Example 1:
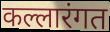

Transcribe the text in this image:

कल्लारंगत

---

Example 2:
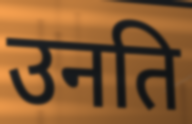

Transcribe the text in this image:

उनति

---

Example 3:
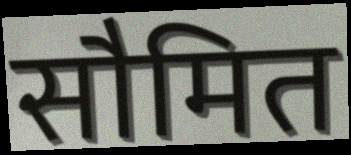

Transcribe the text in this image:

सौमित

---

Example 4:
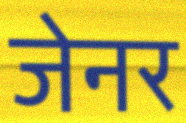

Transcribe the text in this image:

जेनर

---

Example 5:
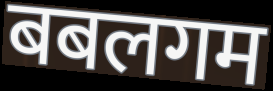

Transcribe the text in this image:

बबलगम